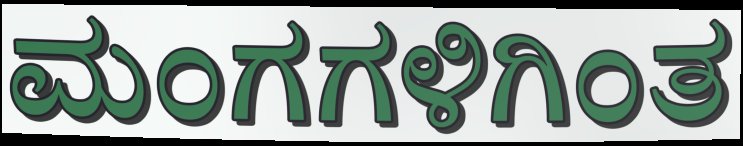
ಮಂಗಗಳಿಗಿಂತ